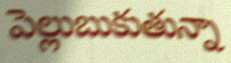
పెల్లుబుకుతున్నా